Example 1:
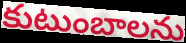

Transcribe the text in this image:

కుటుంబాలను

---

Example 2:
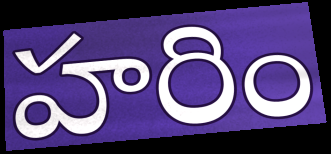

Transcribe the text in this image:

హరిం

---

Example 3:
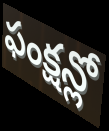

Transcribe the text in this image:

ఫంక్షన్లో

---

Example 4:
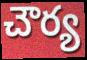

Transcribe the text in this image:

చౌర్య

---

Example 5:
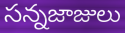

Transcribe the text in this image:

సన్నజాజులు